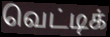
வெட்டிக்